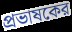
প্রভাষকের